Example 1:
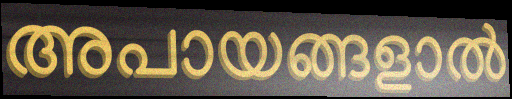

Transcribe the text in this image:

അപായങ്ങളാൽ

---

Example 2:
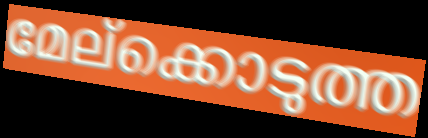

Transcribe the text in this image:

മേല്ക്കൊടുത്ത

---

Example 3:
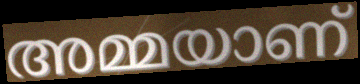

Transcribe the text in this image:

അമ്മയാണ്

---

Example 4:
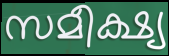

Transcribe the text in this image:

സമീക്ഷ്യ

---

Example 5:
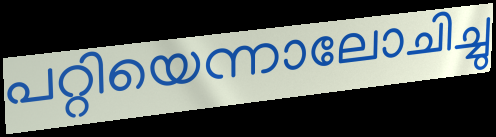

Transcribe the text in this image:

പറ്റിയെന്നാലോചിച്ചു